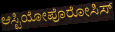
ಆಸ್ಟಿಯೋಪೊರೋಸಿಸ್